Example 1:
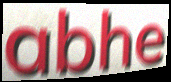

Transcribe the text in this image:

abhe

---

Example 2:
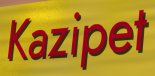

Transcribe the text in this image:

Kazipet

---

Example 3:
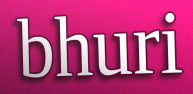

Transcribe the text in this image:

bhuri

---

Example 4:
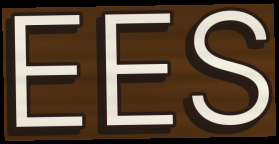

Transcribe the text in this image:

EES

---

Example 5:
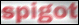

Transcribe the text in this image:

spigot